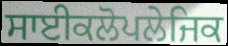
ਸਾਈਕਲੋਪਲੇਜਿਕ